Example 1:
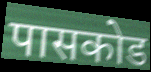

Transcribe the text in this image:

पासकोड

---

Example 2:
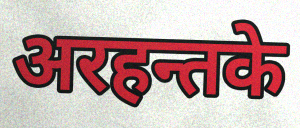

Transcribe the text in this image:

अरहन्तके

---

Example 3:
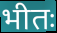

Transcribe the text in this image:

भीतः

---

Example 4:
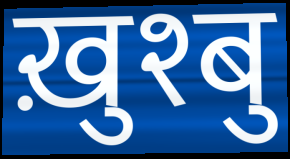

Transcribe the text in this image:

ख़ुश्बु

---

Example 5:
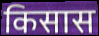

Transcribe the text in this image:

किसास